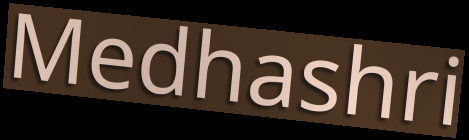
Medhashri